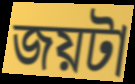
জয়টা